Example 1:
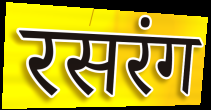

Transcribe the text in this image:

रसरंग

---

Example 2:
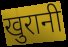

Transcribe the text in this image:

खुरानी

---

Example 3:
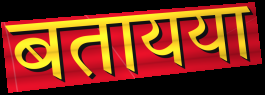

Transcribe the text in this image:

बतायया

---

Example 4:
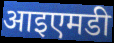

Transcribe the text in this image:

आइएमडी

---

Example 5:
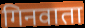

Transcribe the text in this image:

गिनवाता